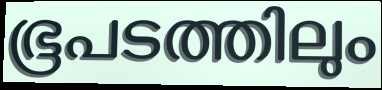
ഭൂപടത്തിലും